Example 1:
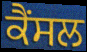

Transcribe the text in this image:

ਕੈਂਸਲ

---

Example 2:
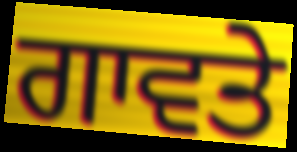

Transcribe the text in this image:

ਗਾਵਤੇ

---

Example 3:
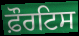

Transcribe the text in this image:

ਫ਼ੌਰਟਿਸ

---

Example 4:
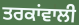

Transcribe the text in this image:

ਤਰਕਾਂਵਾਲੀ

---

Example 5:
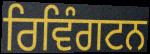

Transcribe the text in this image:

ਰਿਵਿੰਗਟਨ